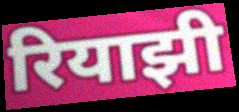
रियाझी